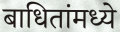
बाधितांमध्ये